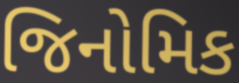
જિનોમિક